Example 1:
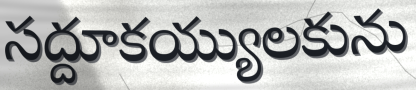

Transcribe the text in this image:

సద్దూకయ్యులకును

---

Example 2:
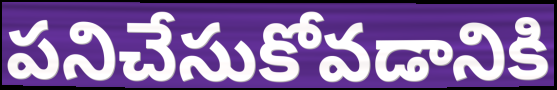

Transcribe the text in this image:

పనిచేసుకోవడానికి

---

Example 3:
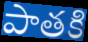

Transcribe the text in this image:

పాతకి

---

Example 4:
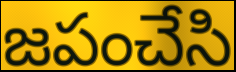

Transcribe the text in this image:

జపంచేసి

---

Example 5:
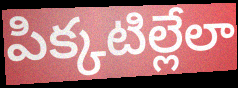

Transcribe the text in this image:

పిక్కటిల్లేలా